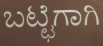
ಬಟ್ಟೆಗಾಗಿ